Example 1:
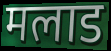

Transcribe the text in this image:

मलाड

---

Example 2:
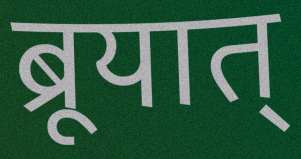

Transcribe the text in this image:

ब्रूयात्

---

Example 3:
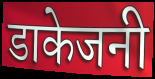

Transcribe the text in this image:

डाकेजनी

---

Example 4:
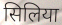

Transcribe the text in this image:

सिलिया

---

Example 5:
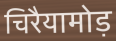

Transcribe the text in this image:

चिरैयामोड़